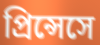
প্রিন্সেসে